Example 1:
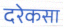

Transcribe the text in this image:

दरेकसा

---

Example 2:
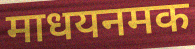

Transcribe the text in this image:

माधयनमक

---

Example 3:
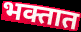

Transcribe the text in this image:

भक्तात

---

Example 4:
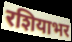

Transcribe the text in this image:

रशियाभर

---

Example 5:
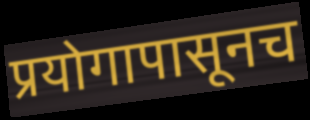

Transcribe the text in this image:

प्रयोगापासूनच